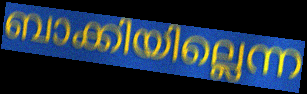
ബാക്കിയില്ലെന്ന